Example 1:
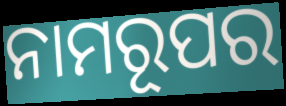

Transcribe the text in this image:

ନାମରୂପର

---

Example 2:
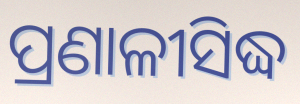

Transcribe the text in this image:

ପ୍ରଣାଳୀସିଦ୍ଧ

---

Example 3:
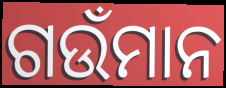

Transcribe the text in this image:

ଗଉଁମାନ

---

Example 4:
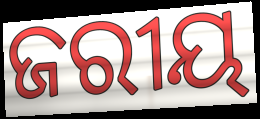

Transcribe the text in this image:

ଜରୀୟ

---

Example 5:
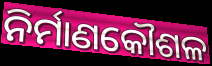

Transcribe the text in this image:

ନିର୍ମାଣକୌଶଳ